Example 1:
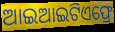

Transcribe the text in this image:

ଆଇଆଇଟିଏଫ୍ରେ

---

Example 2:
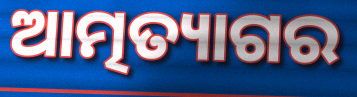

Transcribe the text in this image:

ଆତ୍ମତ୍ୟାଗର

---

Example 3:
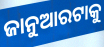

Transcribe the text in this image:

ଜାନୁଆରଟାକୁ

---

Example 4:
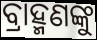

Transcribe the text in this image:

ବ୍ରାହ୍ମଣଙ୍କୁ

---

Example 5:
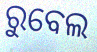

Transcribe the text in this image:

ରୁବେଲ